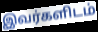
இவர்களிடம்